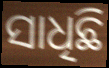
ସାଧିଛି